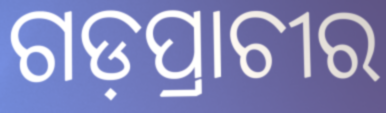
ଗଡ଼ପ୍ରାଚୀର